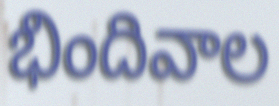
భిందివాల